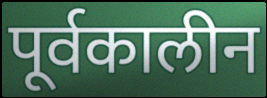
पूर्वकालीन